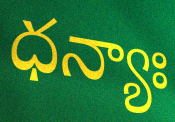
ధన్యాః